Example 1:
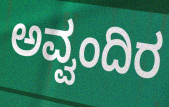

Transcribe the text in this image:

ಅವ್ವಂದಿರ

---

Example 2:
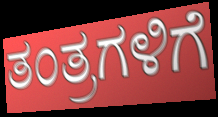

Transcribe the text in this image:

ತಂತ್ರಗಳಿಗೆ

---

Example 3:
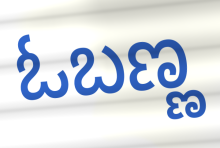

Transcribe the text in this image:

ಓಬಣ್ಣ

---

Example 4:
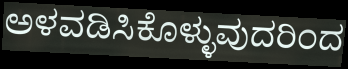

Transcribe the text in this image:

ಅಳವಡಿಸಿಕೊಳ್ಳುವುದರಿಂದ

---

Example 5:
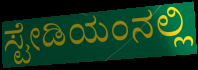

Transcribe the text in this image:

ಸ್ಟೇಡಿಯಂನಲ್ಲಿ